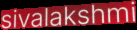
sivalakshmi